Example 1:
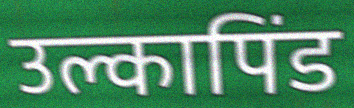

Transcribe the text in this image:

उल्कापिंड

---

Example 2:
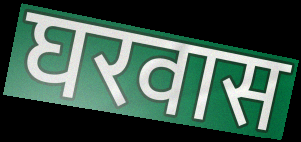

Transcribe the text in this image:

घरवास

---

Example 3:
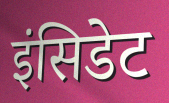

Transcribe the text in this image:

इंसिडेट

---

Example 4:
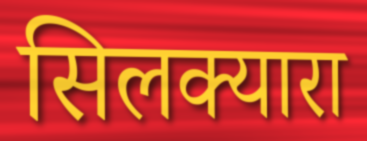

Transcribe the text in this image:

सिलक्यारा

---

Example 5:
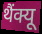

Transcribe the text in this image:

थैंक्यू